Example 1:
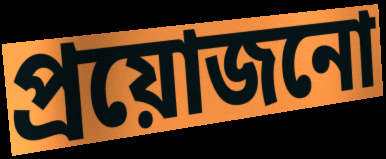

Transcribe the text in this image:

প্ৰয়োজনো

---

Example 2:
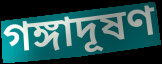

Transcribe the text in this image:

গঙ্গাদূষণ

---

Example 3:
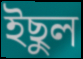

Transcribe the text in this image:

ইছুল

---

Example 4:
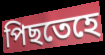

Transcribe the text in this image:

পিছতেহে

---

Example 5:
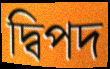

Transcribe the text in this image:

দ্বিপদ